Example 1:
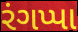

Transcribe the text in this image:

રંગપ્પા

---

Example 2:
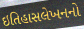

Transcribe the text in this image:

ઇતિહાસલેખનનો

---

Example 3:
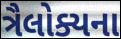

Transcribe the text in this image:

ત્રૈલોક્યના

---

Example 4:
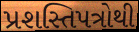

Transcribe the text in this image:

પ્રશસ્તિપત્રોથી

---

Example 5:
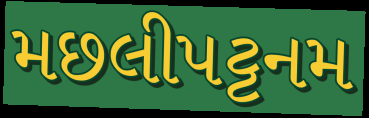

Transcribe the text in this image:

મછલીપટ્ટનમ